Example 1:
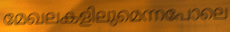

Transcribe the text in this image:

മേഖലകളിലുമെന്നപോലെ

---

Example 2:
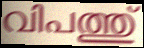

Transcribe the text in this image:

വിപത്തു്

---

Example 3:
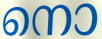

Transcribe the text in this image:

നൊ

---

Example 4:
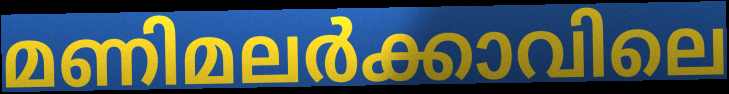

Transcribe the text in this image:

മണിമലർക്കാവിലെ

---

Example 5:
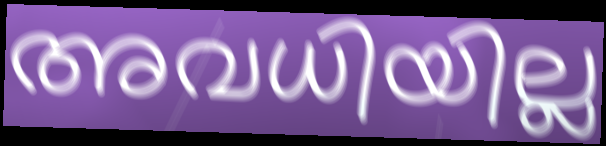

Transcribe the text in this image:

അവധിയില്ല